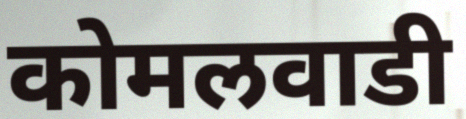
कोमलवाडी